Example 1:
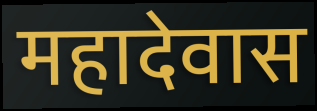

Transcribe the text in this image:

महादेवास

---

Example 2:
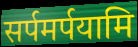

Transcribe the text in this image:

सर्पमर्पयामि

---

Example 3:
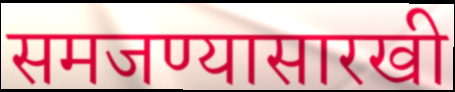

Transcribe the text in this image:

समजण्यासारखी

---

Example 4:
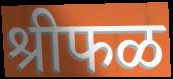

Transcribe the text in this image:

श्रीफळ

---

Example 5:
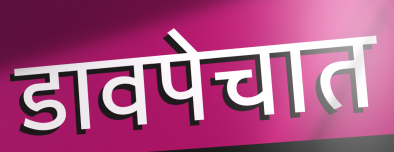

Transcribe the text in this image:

डावपेचात